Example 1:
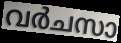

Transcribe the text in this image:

വർചസാ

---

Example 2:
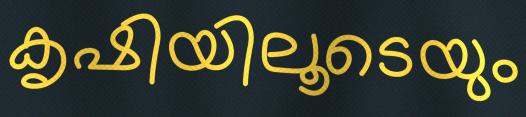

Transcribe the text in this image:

കൃഷിയിലൂടെയും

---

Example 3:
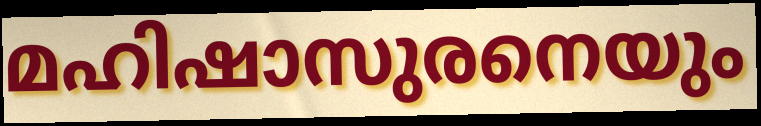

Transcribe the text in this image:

മഹിഷാസുരനെയും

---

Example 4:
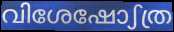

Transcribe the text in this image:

വിശേഷോഽത്ര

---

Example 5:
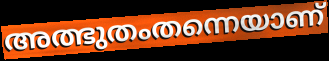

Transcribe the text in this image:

അത്ഭുതംതന്നെയാണ്